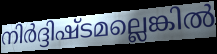
നിർദ്ദിഷ്ടമല്ലെങ്കിൽ